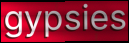
gypsies